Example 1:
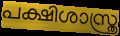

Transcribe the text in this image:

പക്ഷിശാസ്ത്ര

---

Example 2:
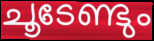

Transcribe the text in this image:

ചൂടേണ്ടും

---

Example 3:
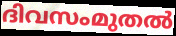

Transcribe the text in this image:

ദിവസംമുതൽ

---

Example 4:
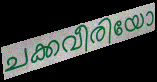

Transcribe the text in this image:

ചക്കവീരിയോ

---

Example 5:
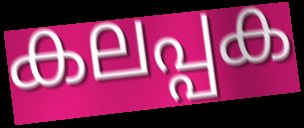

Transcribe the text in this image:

കലപ്പക